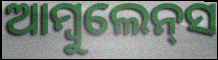
ଆମ୍ବୁଲେନ୍‌ସ